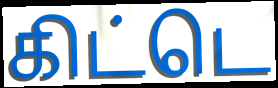
கிட்டெ